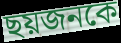
ছয়জনকে